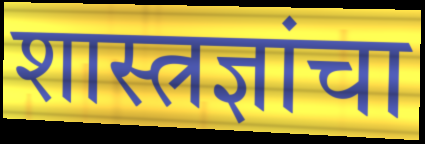
शास्त्रज्ञांचा